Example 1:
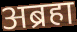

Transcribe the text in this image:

अब्रहा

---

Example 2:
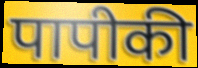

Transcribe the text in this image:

पापीकी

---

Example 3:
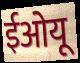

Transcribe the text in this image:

ईओयू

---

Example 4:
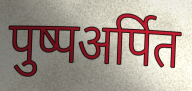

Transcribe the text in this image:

पुष्पअर्पित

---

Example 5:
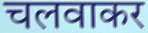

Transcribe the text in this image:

चलवाकर